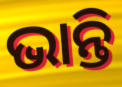
ଭାନ୍ତି